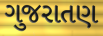
ગુજરાતણ